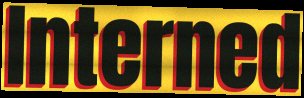
Interned